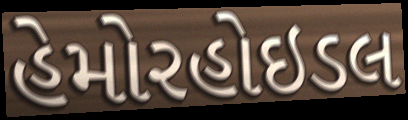
હેમોરહોઇડલ